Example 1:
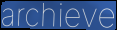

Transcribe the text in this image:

archieve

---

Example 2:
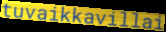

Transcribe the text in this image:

tuvaikkavillai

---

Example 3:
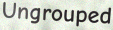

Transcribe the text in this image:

Ungrouped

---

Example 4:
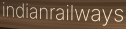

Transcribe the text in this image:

indianrailways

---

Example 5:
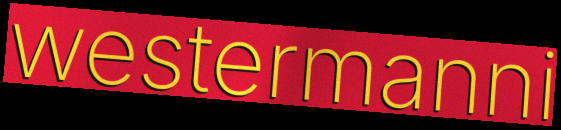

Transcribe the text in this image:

westermanni